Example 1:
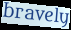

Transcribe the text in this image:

bravely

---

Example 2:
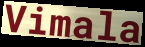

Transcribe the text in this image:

Vimala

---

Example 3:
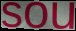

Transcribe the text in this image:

sou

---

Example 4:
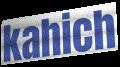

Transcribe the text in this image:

kahich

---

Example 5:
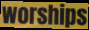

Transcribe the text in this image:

worships